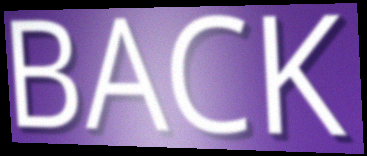
BACK